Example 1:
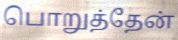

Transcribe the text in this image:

பொறுத்தேன்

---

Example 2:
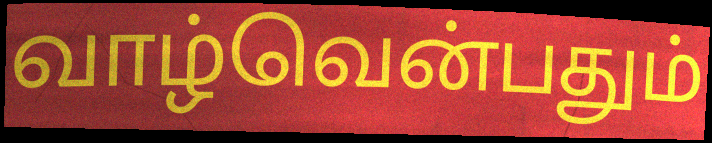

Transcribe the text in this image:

வாழ்வென்பதும்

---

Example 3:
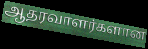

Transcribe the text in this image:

ஆதரவாளர்களான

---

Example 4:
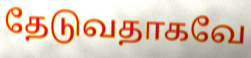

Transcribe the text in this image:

தேடுவதாகவே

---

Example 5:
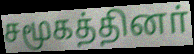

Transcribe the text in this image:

சமூகத்தினர்